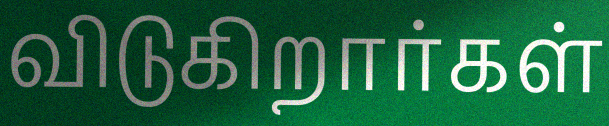
விடுகிறார்கள்